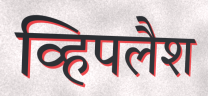
व्हिपलैश